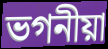
ভগনীয়া